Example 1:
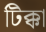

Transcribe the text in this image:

টিক্কা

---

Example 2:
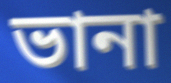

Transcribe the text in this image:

ভানা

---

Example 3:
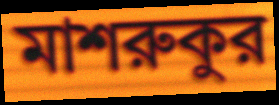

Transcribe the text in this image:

মাশরুকুর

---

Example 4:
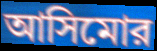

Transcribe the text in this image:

আসিমোর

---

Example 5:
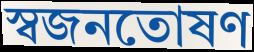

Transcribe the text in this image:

স্বজনতোষণ